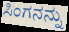
ಸಿಂಗನನ್ನು